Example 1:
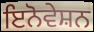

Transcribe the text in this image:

ਇਨੋਵੇਸ਼ਨ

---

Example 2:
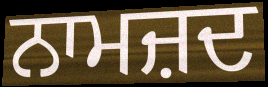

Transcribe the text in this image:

ਨਾਮਜ਼ਦ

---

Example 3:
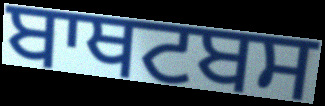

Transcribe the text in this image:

ਬਾਥਟਬਸ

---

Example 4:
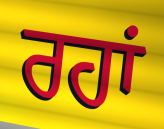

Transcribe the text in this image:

ਰਹਾਂ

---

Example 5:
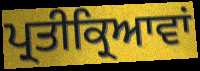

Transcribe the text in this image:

ਪ੍ਰਤੀਕ੍ਰਿਆਵਾਂ